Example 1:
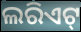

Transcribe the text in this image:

ଲରିଏଟ୍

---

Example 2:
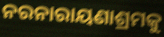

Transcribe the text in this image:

ନରନାରାୟଣାଶ୍ରମକୁ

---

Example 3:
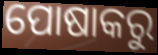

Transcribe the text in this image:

ପୋଷାକରୁ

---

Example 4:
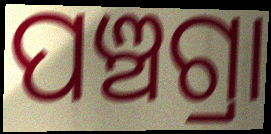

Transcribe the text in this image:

ପଞ୍ଚଗ୍ରା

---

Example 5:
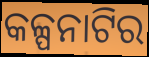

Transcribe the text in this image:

କଳ୍ପନାଟିର